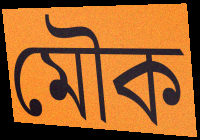
মৌক